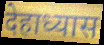
देहाध्यास